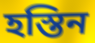
হস্তিন